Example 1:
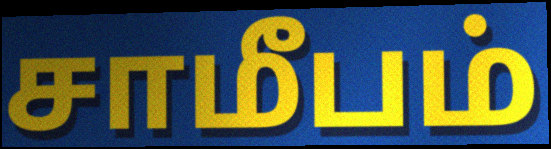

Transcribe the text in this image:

சாமீபம்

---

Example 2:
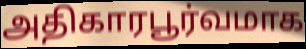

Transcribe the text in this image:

அதிகாரபூர்வமாக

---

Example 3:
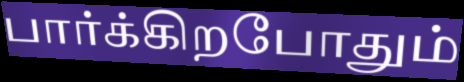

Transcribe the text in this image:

பார்க்கிறபோதும்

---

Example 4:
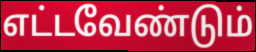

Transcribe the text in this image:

எட்டவேண்டும்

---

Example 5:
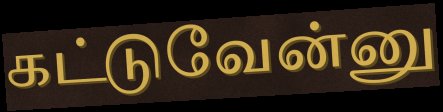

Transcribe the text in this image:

கட்டுவேன்னு